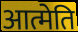
आत्मेति